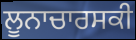
ਲੂਨਾਚਾਰਸਕੀ